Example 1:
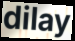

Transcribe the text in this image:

dilay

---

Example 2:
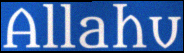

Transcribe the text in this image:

Allahu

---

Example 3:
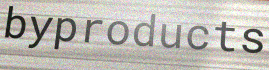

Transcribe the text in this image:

byproducts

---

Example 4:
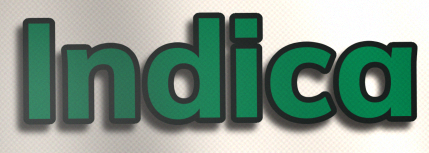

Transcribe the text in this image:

Indica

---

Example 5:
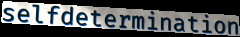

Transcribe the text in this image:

selfdetermination